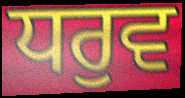
ਧਰੁਵ